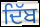
ਦਿੱਬ